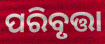
ପରିବୃତ୍ତା